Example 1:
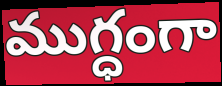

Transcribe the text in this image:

ముగ్ధంగా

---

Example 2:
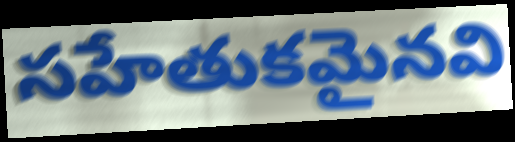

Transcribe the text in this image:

సహేతుకమైనవి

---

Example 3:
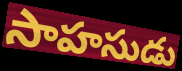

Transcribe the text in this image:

సాహసుడు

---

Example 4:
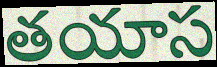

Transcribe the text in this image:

తయాస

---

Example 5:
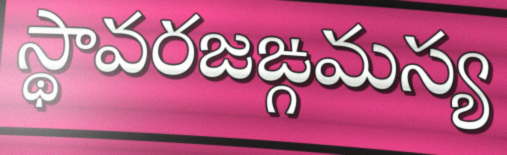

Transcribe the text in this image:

స్థావరజఙ్గమస్య